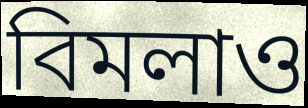
বিমলাও